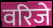
वरिजे